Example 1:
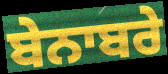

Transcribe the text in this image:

ਬੇਨਾਬਰੇ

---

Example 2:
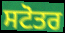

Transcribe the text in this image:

ਸਟੋਤਰ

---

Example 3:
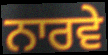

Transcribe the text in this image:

ਨਾਰਵੇ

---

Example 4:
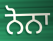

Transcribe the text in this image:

ਨੋਨਾ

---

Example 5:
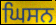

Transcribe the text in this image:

ਘਿਸਨ